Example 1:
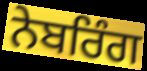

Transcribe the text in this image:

ਨੇਬਰਿੰਗ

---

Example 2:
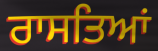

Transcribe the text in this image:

ਰਾਸਤਿਆਂ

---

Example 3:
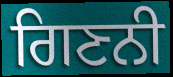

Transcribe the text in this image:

ਗਿਣਨੀ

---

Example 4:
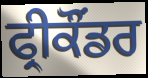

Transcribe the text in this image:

ਫ੍ਰੀਕੌਂਡਰ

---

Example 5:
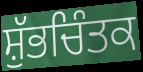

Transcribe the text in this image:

ਸ਼ੁੱਭਚਿੰਤਕ